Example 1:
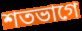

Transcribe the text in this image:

শতভাগে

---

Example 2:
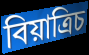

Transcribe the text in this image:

বিয়াত্রিচ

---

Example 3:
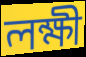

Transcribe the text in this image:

লক্ষী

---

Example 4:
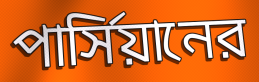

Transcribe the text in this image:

পার্সিয়ানের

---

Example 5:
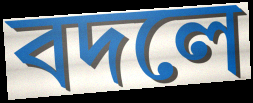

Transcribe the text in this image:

বদলে